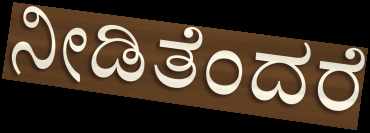
ನೀಡಿತೆಂದರೆ